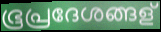
ഭൂപ്രദേശങ്ങള്